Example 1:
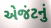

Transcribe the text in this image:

એજંટનું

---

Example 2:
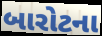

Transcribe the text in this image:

બારોટના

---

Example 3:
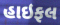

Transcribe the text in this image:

હાઇફલ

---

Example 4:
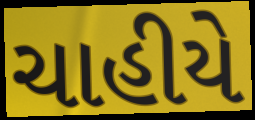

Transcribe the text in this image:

ચાહીયે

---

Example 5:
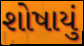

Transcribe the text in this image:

શોષાયું